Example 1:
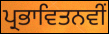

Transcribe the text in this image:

ਪ੍ਰਭਾਵਿਤਨਵੀਂ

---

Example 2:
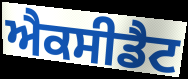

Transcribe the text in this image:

ਐਕਸੀਡੈਟ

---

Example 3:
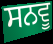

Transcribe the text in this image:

ਸਨਵੂ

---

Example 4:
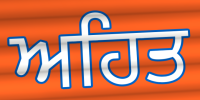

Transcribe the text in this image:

ਅਹਿਤ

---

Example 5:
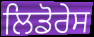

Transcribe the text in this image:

ਲਿਡੋਰੇਸ